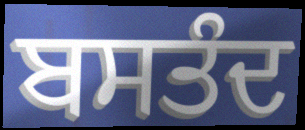
ਬਸਤੰਦ